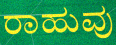
ರಾಹುವು